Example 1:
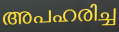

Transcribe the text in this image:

അപഹരിച്ച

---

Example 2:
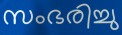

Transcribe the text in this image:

സംഭരിച്ചു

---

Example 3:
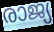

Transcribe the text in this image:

രാജ്യ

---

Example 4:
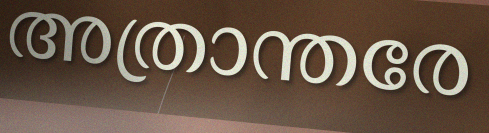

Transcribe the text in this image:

അത്രാന്തരേ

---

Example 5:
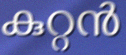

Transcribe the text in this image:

കുറ്റൻ